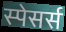
स्पेसर्स